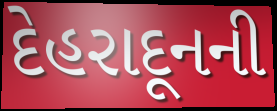
દેહરાદૂનની